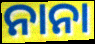
ନାନା